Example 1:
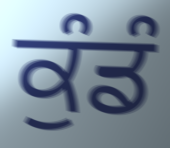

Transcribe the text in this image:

ਕੁੰਡੰ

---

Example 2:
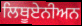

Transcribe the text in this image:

ਲਿਥੂਏਨੀਅਨ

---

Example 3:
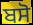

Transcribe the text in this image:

ਬਸੋ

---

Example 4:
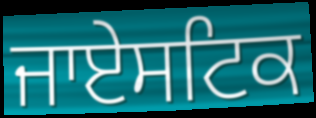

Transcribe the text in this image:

ਜਾਏਸਟਿਕ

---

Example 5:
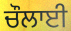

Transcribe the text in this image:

ਚੌਲਾਈ